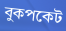
বুকপকেট